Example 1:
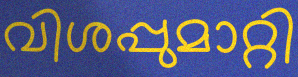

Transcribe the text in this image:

വിശപ്പുമാറ്റി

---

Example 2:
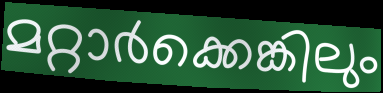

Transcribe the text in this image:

മറ്റാർക്കെങ്കിലും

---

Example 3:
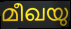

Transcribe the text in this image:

മീഖയു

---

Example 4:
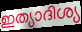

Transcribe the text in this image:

ഇത്യാദിശ്യ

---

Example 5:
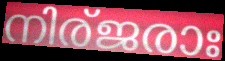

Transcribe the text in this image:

നിര്ജരാഃ